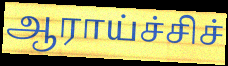
ஆராய்ச்சிச்